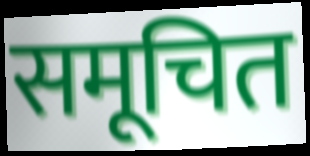
समूचित